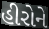
હીરોને